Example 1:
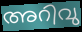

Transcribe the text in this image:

അറിവു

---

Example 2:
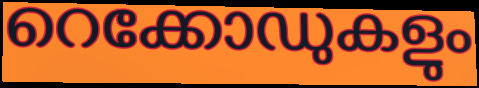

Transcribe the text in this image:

റെക്കോഡുകളും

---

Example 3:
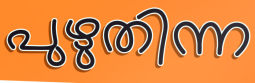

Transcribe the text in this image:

പുഴുതിന്ന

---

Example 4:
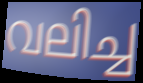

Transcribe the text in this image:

വലിച്ച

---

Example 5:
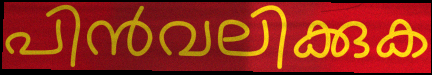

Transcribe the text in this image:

പിൻവലിക്കുക